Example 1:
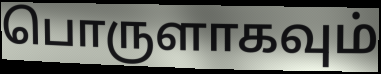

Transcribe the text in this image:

பொருளாகவும்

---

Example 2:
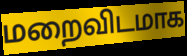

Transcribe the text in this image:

மறைவிடமாக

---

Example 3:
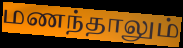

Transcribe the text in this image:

மணந்தாலும்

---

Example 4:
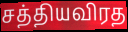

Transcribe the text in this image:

சத்தியவிரத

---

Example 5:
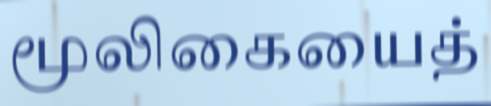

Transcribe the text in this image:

மூலிகையைத்